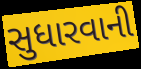
સુધારવાની